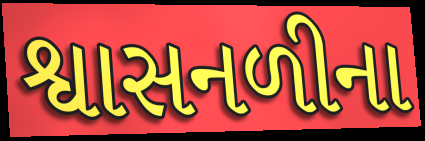
શ્વાસનળીના